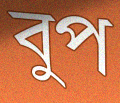
বুপ